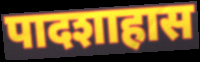
पादशाहास